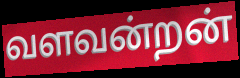
வளவன்றன்